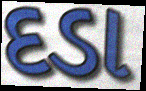
દડા